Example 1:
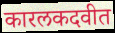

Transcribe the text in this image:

कारलकदवीत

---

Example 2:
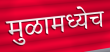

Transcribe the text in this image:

मुळामध्येच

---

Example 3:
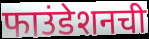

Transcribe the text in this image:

फाउंडेशनची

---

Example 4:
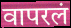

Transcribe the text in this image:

वापरलं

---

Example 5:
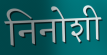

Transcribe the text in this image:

निनोशी